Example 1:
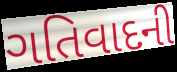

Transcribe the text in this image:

ગતિવાદની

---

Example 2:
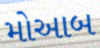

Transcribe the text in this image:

મોઆબ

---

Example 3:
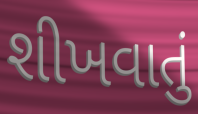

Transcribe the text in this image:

શીખવાતું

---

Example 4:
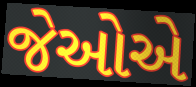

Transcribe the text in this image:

જેઓએ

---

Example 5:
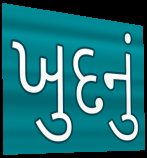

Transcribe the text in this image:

ખુદનું